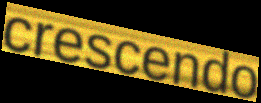
crescendo